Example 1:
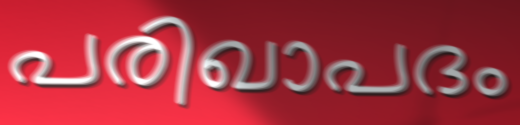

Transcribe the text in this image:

പരിഖാപദം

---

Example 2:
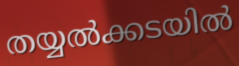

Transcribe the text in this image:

തയ്യൽക്കടയിൽ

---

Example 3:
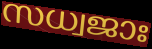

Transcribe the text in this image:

സധ്വജാഃ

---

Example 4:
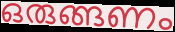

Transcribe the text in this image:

ഒരുങ്ങണം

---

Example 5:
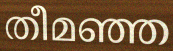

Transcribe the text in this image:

തീമഞ്ഞ